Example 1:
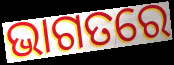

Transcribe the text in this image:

ଭାଗତରେ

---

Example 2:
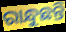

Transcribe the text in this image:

ରାନ୍ଧୁଛନ୍ତି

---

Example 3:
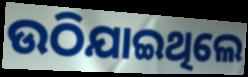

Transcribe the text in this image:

ଉଠିଯାଇଥିଲେ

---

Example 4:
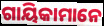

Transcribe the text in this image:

ଗାୟିକାମାନେ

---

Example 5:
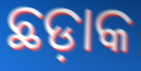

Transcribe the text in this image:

ଛଡ଼ାକ